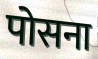
पोसना